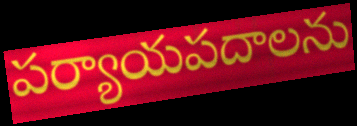
పర్యాయపదాలను